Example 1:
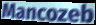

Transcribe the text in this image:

Mancozeb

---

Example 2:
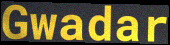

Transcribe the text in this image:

Gwadar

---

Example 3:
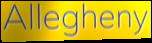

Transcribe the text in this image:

Allegheny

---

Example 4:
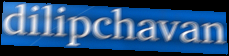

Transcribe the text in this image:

dilipchavan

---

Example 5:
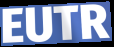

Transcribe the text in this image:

EUTR